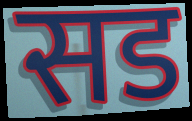
सड